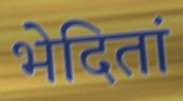
भेदितां